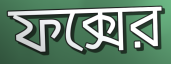
ফক্সের